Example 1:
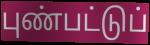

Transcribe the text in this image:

புண்பட்டுப்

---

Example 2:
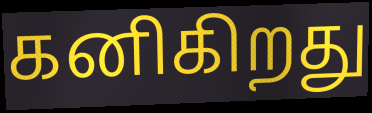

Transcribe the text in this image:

கனிகிறது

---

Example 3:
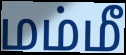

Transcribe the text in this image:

மம்மீ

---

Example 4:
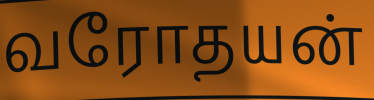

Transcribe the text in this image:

வரோதயன்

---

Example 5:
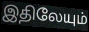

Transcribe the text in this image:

இதிலேயும்